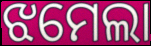
ଝମେଲା